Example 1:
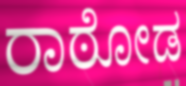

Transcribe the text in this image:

ರಾಠೋಡ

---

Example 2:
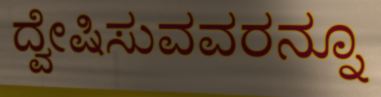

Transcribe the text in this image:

ದ್ವೇಷಿಸುವವರನ್ನೂ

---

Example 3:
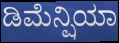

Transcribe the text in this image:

ಡಿಮೆನ್ಷಿಯಾ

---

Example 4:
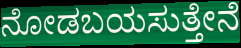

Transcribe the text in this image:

ನೋಡಬಯಸುತ್ತೇನೆ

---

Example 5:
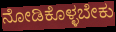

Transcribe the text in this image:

ನೋಡಿಕೊಳ್ಳಬೇಕು